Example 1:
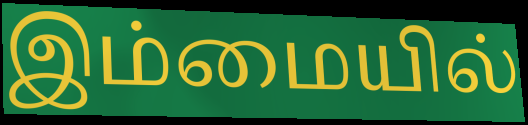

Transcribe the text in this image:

இம்மையில்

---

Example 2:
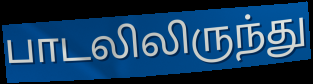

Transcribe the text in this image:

பாடலிலிருந்து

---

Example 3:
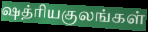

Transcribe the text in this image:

ஷத்ரியகுலங்கள்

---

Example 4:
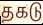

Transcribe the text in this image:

தகடு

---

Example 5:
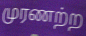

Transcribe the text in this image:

முரணற்ற